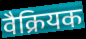
वैक्रियक